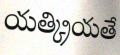
యత్క్రియతే